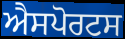
ਐਸਪੋਰਟਸ